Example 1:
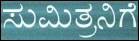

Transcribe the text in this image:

ಸುಮಿತ್ರನಿಗೆ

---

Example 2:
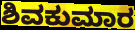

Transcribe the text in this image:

ಶಿವಕುಮಾರ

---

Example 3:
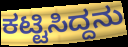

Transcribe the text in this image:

ಕಟ್ಟಿಸಿದ್ದನು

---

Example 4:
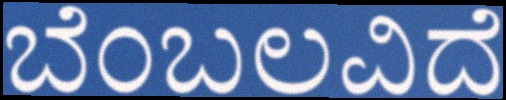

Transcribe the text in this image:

ಬೆಂಬಲವಿದೆ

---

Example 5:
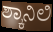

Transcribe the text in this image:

ಶ್ಕಾನಿಲಿ